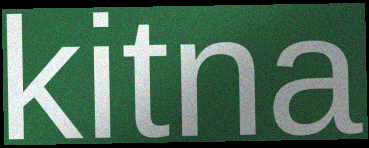
kitna